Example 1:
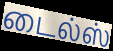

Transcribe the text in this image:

டைல்ஸ்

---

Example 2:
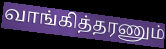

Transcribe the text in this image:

வாங்கித்தரணும்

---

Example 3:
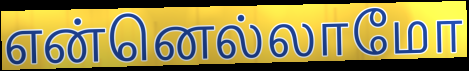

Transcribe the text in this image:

என்னெல்லாமோ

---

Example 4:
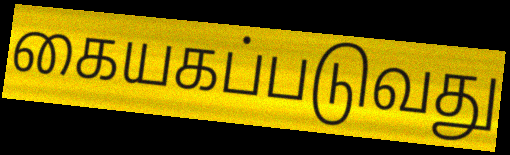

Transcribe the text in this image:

கையகப்படுவது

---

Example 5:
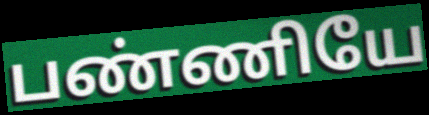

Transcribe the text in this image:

பண்ணியே